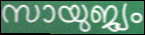
സായുജ്യം